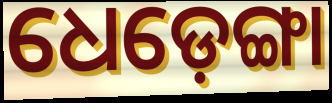
ଧେଡ଼େଙ୍ଗା